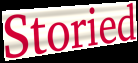
Storied